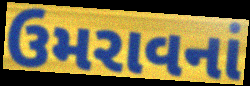
ઉમરાવનાં